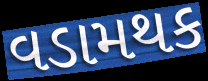
વડામથક